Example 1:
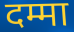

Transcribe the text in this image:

दम्मा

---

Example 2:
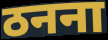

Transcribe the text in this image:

ठनना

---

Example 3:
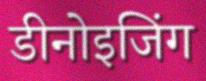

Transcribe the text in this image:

डीनोइजिंग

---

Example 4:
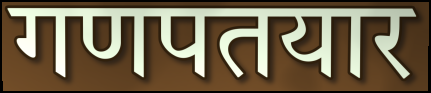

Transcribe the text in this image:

गणपतयार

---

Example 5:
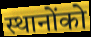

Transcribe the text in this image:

स्थानोंको